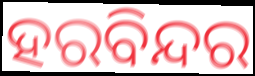
ହରବିନ୍ଦର